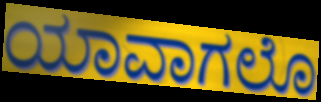
ಯಾವಾಗಲೊ